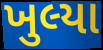
ખુલ્યા